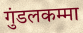
गुंडलकम्मा